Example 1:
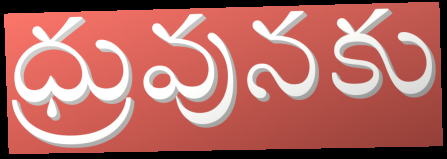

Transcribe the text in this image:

ధ్రువునకు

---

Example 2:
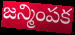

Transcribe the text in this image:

జన్మింపక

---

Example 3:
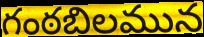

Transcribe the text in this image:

గంఠబిలమున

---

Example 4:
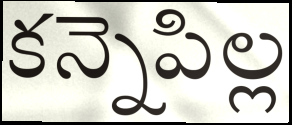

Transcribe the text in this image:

కన్నెపిల్ల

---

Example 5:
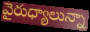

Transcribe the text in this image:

వైరుధ్యాలున్నా